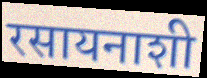
रसायनाशी